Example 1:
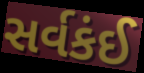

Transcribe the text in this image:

સર્વકંઈ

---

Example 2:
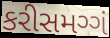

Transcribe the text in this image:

કરીસમગ્ગં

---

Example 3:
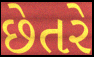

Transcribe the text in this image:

છેતરે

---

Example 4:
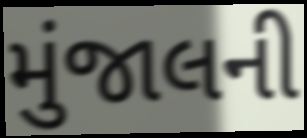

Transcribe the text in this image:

મુંજાલની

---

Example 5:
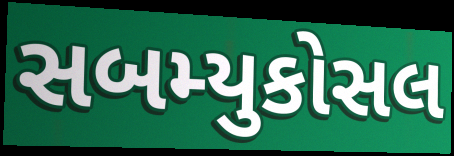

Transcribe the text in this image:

સબમ્યુકોસલ